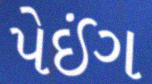
પેઈંગ